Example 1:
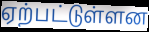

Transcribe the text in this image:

ஏற்பட்டுள்ளன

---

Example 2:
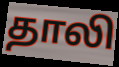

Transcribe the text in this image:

தாலி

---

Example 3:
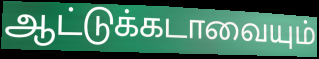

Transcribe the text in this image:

ஆட்டுக்கடாவையும்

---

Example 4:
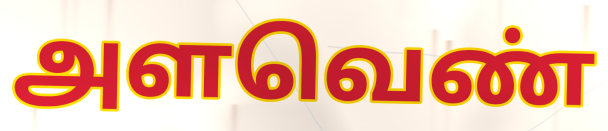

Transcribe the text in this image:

அளவெண்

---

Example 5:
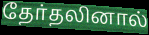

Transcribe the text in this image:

தேர்தலினால்